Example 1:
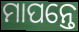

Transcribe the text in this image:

ମାପନ୍ତେ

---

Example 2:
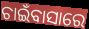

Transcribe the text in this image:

ଚାଇଁବାସାରେ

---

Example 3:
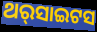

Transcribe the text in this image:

ଥର୍‌ସାଇଟସ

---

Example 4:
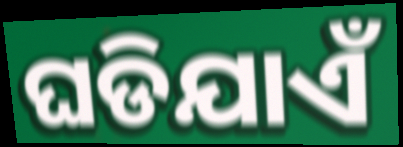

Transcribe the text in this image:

ଘଡିଯାଏଁ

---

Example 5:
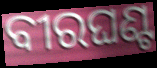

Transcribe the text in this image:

ବୀରଘଣ୍ଟ